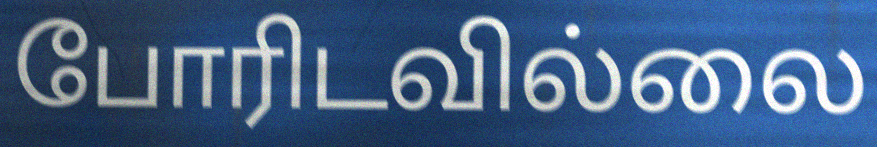
போரிடவில்லை